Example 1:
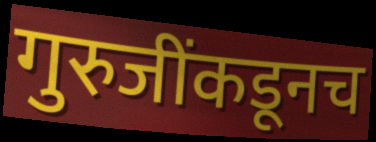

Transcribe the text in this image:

गुरुजींकडूनच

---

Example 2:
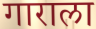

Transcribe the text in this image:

गाराला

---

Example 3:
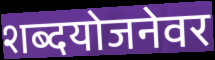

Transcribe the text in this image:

शब्दयोजनेवर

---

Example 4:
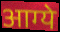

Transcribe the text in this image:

आग्ये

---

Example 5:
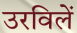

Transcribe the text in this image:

उरविलें